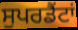
ਸੁਪਰਡੈਂਟਾਂ